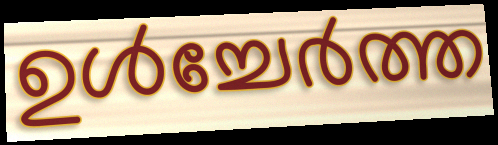
ഉൾച്ചേർത്ത